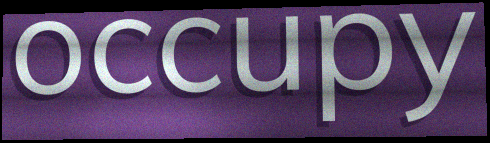
occupy